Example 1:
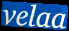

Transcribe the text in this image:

velaa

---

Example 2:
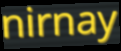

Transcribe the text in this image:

nirnay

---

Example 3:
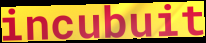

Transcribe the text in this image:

incubuit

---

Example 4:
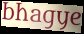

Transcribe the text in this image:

bhagye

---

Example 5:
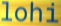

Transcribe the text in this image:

lohi